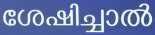
ശേഷിച്ചാൽ